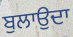
ਬੁਲਾਉਦਾ